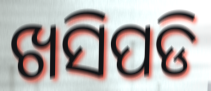
ଖସିପଡି